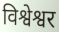
विश्वेश्वर